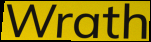
Wrath